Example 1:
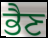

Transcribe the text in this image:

ਭੈਣ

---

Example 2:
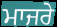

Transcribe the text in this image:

ਮਾਜਰੇ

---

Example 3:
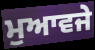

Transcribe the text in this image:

ਮੁਆਵਜੇ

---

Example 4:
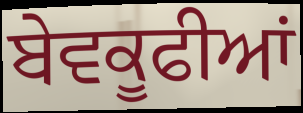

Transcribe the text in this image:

ਬੇਵਕੂਫੀਆਂ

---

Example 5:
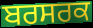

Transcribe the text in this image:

ਬਰਸਰਕ